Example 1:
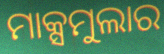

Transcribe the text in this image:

ମାକ୍ସମୁଲାର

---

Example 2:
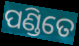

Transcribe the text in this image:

ପଣ୍ଡିତେ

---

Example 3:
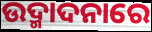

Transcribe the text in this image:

ଉଦ୍ମାଦନାରେ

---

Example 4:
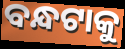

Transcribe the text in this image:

ବନ୍ଧଟାକୁ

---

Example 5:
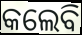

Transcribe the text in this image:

କଲେବି